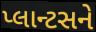
પ્લાન્ટસને